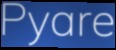
Pyare